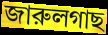
জারুলগাছ